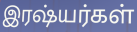
இரஷ்யர்கள்